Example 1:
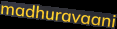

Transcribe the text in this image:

madhuravaani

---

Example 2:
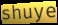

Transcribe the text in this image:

shuye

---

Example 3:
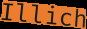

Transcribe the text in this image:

Illich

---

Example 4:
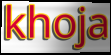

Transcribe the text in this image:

khoja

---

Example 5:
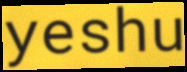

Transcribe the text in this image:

yeshu